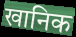
खानिक